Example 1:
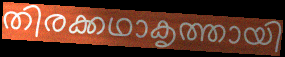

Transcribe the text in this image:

തിരക്കഥാകൃത്തായി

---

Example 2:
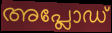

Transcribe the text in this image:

അപ്ലോഡ്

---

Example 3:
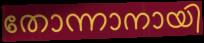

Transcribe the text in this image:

തോന്നാനായി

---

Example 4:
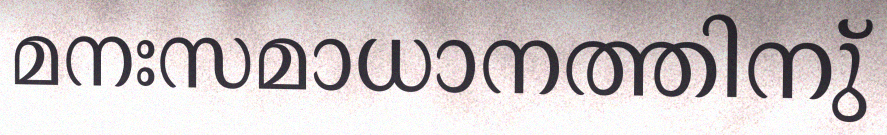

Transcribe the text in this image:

മനഃസമാധാനത്തിനു്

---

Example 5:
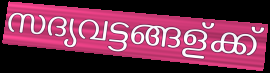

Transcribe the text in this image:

സദ്യവട്ടങ്ങള്ക്ക്